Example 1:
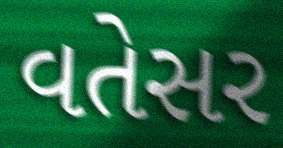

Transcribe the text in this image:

વતેસર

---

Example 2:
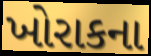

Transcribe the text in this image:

ખોરાકના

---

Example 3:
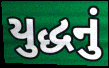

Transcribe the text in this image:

યુદ્ધનું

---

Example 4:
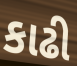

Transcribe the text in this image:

કાઢી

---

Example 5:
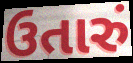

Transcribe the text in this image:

ઉતારું